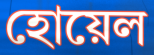
হোয়েল